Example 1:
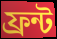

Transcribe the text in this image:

ফ্রন্ট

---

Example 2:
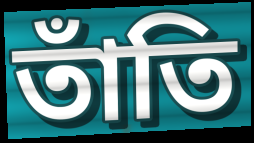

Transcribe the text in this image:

তাঁতি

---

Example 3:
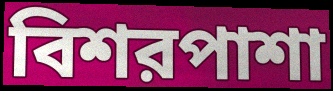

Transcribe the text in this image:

বিশরপাশা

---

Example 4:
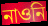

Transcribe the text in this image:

নাওনি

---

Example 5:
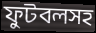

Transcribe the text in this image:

ফুটবলসহ